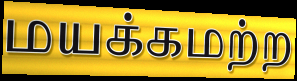
மயக்கமற்ற